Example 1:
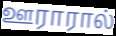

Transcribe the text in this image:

ஊராரால்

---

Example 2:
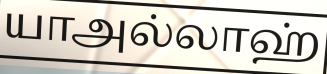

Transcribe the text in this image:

யாஅல்லாஹ்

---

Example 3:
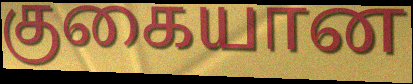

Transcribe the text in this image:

குகையான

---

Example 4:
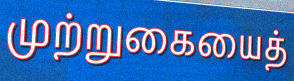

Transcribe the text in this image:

முற்றுகையைத்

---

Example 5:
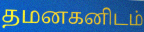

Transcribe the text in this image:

தமனகனிடம்